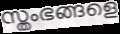
സ്തംഭങ്ങളെ